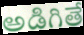
అడిగితే